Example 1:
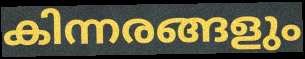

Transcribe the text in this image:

കിന്നരങ്ങളും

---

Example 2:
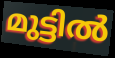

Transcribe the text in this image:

മുട്ടിൽ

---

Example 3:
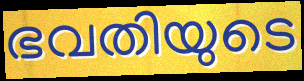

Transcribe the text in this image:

ഭവതിയുടെ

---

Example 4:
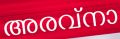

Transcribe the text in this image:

അരവ്നാ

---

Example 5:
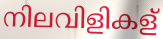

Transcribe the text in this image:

നിലവിളികള്